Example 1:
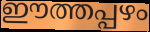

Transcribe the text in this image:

ഈത്തപ്പഴം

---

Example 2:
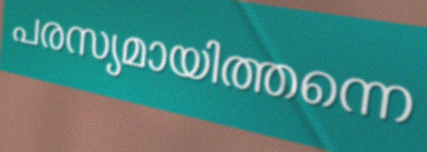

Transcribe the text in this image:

പരസ്യമായിത്തന്നെ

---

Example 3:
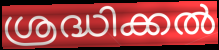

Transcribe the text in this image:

ശ്രദ്ധിക്കൽ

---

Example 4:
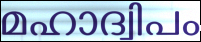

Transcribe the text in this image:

മഹാദ്വിപം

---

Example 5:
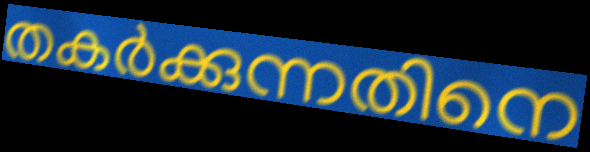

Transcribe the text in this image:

തകർക്കുന്നതിനെ